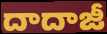
దాదాజీ